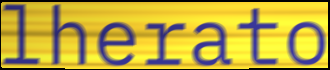
lherato